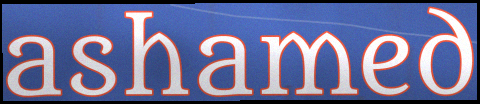
ashamed